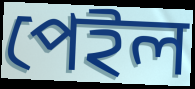
পেইল